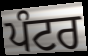
ਪੰਟਰ